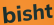
bisht